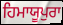
ਹਿਮਾਯੂਪੁਰਾ